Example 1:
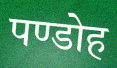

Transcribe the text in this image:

पण्डोह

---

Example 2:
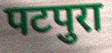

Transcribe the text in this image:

पटपुरा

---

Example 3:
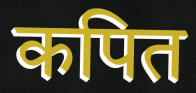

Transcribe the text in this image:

कपित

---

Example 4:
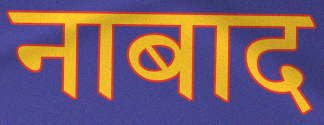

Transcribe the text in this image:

नाबाद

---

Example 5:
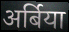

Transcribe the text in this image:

अर्बिया